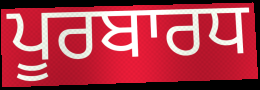
ਪੂਰਬਾਰਧ